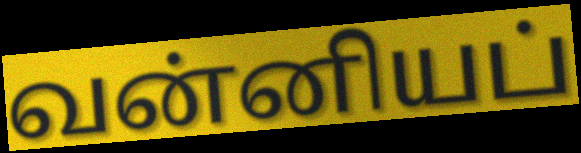
வன்னியப்